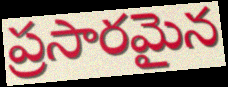
ప్రసారమైన